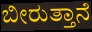
ಬೀರುತ್ತಾನೆ